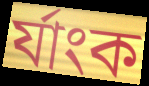
র্যাংক